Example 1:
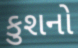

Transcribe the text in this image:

કુશનો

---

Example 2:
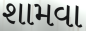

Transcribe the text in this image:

શામવા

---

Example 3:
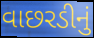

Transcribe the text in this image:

વાછરડીનું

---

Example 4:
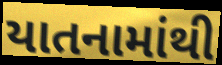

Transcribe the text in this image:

યાતનામાંથી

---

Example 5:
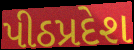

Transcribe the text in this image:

પીઠપ્રદેશ